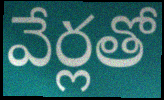
వేర్లతో